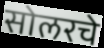
सोलरचे